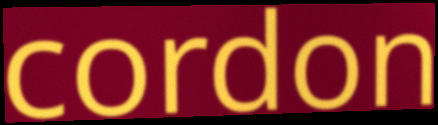
cordon